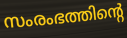
സംരംഭത്തിന്റെ